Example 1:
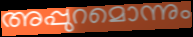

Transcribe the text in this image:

അപ്പുറമൊന്നും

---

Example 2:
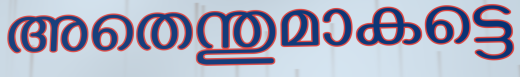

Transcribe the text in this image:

അതെന്തുമാകട്ടെ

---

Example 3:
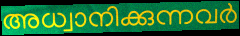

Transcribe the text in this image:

അധ്വാനിക്കുന്നവർ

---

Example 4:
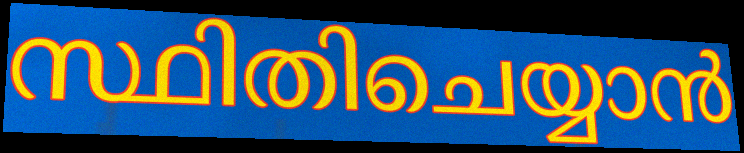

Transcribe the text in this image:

സ്ഥിതിചെയ്യാൻ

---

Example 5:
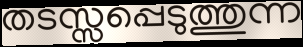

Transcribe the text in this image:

തടസ്സപ്പെടുത്തുന്ന